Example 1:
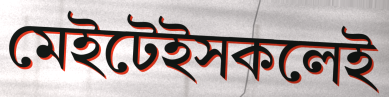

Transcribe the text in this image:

মেইটেইসকলেই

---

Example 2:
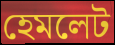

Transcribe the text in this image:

হেমলেট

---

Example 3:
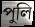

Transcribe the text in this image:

পুলি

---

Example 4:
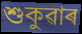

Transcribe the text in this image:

শুকুৱাৰ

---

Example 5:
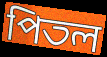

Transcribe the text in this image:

পিতল